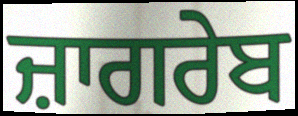
ਜ਼ਾਗਰੇਬ